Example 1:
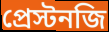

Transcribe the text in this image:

প্রেস্টনজি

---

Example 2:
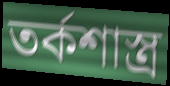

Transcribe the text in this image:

তর্কশাস্ত্র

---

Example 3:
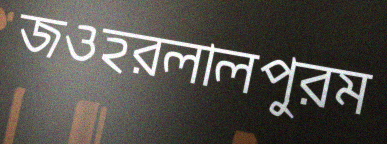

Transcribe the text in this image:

জওহরলালপুরম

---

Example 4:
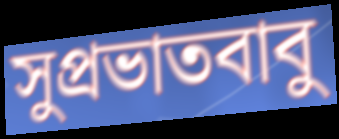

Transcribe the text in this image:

সুপ্রভাতবাবু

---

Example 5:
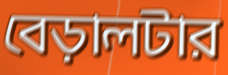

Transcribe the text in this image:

বেড়ালটার